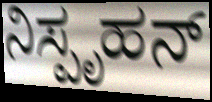
ನಿಸ್ಪೃಹನ್